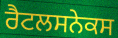
ਰੈਟਲਸਨੇਕਸ